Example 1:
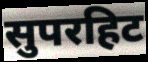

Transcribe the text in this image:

सुपरहिट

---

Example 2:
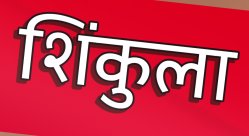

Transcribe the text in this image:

शिंकुला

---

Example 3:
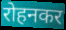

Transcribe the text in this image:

रोहनकर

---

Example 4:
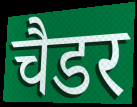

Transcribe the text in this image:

चैडर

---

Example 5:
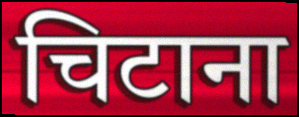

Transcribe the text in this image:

चिटाना